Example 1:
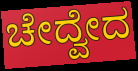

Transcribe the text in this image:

ಚೇದ್ವೇದ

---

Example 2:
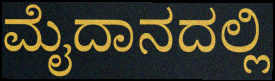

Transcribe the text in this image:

ಮೈದಾನದಲ್ಲಿ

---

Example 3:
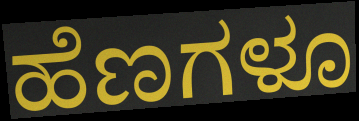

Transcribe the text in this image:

ಹೆಣಗಳೂ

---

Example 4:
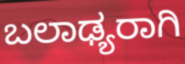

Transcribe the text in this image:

ಬಲಾಢ್ಯರಾಗಿ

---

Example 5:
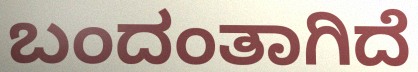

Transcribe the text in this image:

ಬಂದಂತಾಗಿದೆ